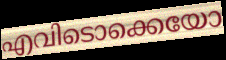
എവിടൊക്കെയോ